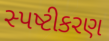
સ્પષ્ટીકરણ